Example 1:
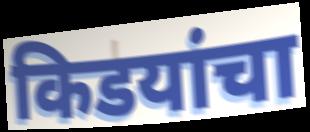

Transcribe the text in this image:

किडयांचा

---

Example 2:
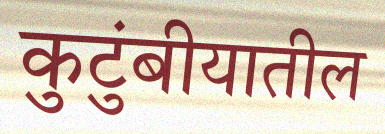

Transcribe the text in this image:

कुटुंबीयातील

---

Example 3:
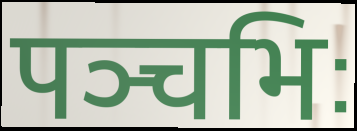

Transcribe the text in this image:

पञ्चभिः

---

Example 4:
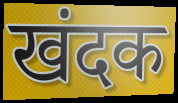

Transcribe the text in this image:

खंदक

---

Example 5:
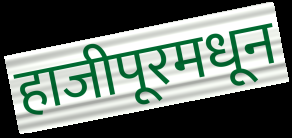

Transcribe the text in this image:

हाजीपूरमधून